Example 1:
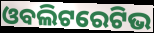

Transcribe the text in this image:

ଓବଲିଟରେଟିଭ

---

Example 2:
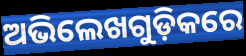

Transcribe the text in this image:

ଅଭିଲେଖଗୁଡ଼ିକରେ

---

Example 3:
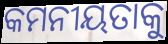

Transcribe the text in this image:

କମନୀୟତାକୁ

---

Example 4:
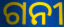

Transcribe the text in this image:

ଗନୀ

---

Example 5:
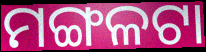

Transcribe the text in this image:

ମଙ୍ଗଳଟା